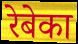
रेबेका